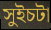
সুইচটা